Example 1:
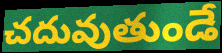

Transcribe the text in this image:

చదువుతుండే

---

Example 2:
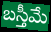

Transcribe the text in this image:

బస్తీమే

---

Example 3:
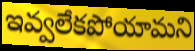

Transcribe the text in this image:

ఇవ్వలేకపోయామని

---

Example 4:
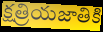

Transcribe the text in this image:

క్షత్రియజాతికి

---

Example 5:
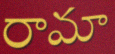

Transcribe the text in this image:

రామా